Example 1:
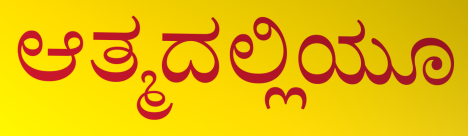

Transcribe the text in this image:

ಆತ್ಮದಲ್ಲಿಯೂ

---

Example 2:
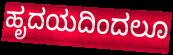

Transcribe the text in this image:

ಹೃದಯದಿಂದಲೂ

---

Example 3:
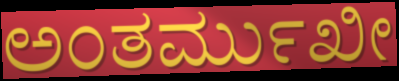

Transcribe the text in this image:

ಅಂತರ್ಮುಖೀ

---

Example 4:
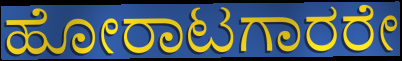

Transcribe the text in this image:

ಹೋರಾಟಗಾರರೇ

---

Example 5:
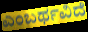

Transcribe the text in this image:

ಎಂಬರ್ಥವಿದೆ